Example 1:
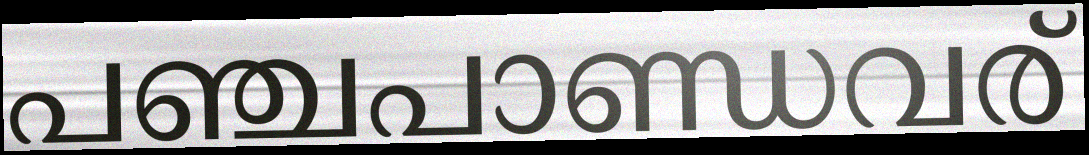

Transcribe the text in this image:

പഞ്ചപാണ്ഡവര്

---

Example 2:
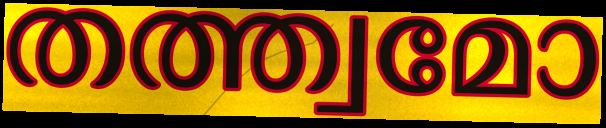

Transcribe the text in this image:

തത്ത്വമോ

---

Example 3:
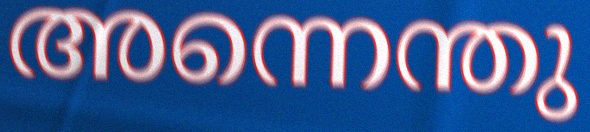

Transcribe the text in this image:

അന്നെന്തു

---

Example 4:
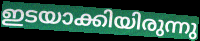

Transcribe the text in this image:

ഇടയാക്കിയിരുന്നു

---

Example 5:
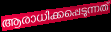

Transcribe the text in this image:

ആരാധിക്കപ്പെടുന്നത്